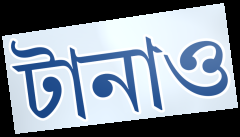
টানাও